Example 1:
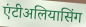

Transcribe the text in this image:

एंटीअलियासिंग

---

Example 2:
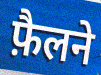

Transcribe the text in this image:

फ़ैलने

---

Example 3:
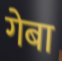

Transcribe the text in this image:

गेबा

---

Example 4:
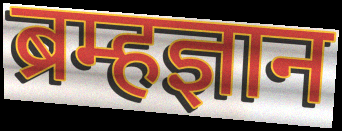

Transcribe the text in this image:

ब्रम्हज्ञान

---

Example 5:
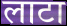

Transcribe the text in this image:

लाटा